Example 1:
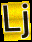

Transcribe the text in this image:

Lj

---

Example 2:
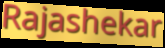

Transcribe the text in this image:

Rajashekar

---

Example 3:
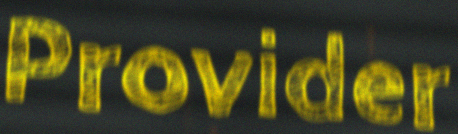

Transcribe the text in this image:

Provider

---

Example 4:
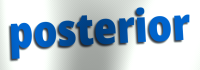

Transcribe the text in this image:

posterior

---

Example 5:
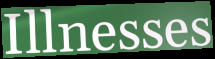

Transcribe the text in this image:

Illnesses